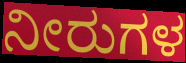
ನೀರುಗಳ